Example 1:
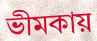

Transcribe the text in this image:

ভীমকায়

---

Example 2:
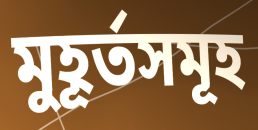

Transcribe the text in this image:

মুহূৰ্তসমূহ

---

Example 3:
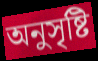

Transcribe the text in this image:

অনুসৃষ্টি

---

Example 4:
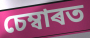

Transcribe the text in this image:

চেম্বাৰত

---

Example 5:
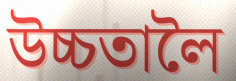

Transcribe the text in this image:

উচ্চতালৈ